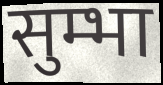
सुम्भा